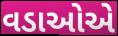
વડાઓએ